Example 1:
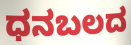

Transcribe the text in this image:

ಧನಬಲದ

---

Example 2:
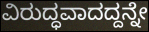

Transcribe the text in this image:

ವಿರುದ್ಧವಾದದ್ದನ್ನೇ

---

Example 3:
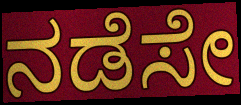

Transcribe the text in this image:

ನಡೆಸೇ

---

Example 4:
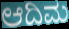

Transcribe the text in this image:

ಆದಿಮ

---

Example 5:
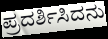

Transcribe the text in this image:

ಪ್ರದರ್ಶಿಸಿದನು